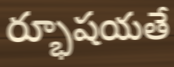
ర్భూషయతే